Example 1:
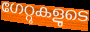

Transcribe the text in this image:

ഗേറ്റുകളുടെ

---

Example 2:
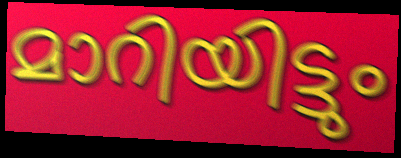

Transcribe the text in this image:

മാറിയിട്ടും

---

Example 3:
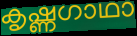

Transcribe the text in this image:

കൃഷ്ണഗാഥാ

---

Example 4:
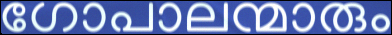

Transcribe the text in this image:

ഗോപാലന്മാരും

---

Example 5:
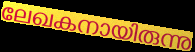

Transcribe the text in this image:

ലേഖകനായിരുന്നു